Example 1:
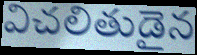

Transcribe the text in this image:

విచలితుడైన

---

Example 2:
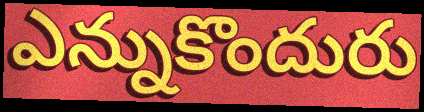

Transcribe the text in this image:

ఎన్నుకొందురు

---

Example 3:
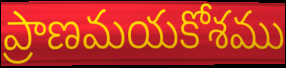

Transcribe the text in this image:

ప్రాణమయకోశము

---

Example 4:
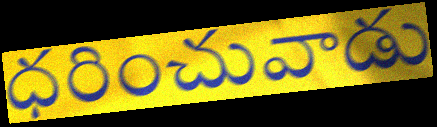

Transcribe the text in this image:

ధరించువాడు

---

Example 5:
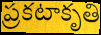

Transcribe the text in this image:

ప్రకటాకృతి